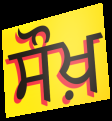
ਸੌਖ਼